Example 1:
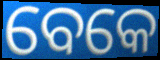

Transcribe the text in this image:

ବେକେ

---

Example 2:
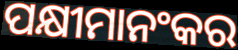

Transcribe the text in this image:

ପକ୍ଷୀମାନଂକର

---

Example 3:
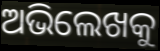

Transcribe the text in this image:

ଅଭିଲେଖକୁ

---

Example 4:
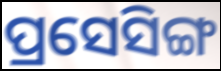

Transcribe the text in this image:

ପ୍ରସେସିଙ୍ଗ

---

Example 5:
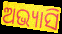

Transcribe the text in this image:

ଅଭ୍ୟାସି